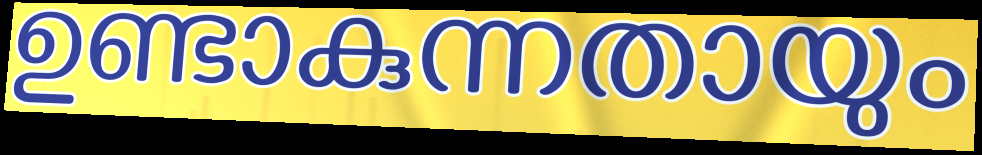
ഉണ്ടാകുന്നതായും